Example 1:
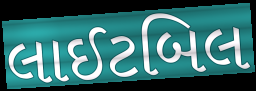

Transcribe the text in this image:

લાઈટબિલ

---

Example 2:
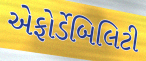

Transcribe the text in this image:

એફોર્ડેબિલિટી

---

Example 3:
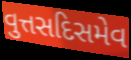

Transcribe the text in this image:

વુત્તસદિસમેવ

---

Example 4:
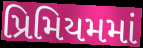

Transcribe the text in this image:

પ્રિમિયમમાં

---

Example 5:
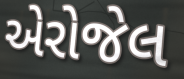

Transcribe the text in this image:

એરોજેલ